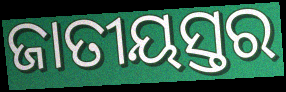
ଜାତୀୟସ୍ତର